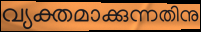
വ്യക്തമാക്കുന്നതിനു